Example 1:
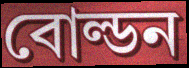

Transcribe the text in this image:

বোল্ডন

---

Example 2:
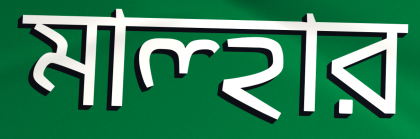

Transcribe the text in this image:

মাল্হার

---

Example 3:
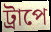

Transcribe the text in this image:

ট্রাপে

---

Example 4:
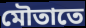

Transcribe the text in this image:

মৌতাতে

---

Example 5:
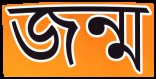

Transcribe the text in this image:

জন্ম